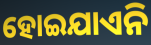
ହୋଇଯାଏନି